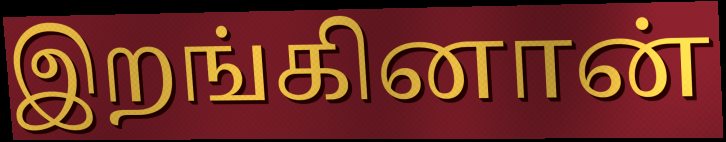
இறங்கினான்